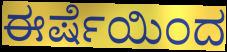
ಈರ್ಷೆಯಿಂದ